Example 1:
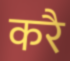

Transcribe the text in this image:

करै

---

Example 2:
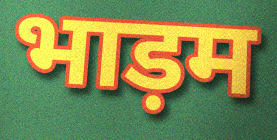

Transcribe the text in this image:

भाड़म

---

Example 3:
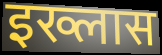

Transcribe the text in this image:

इख्लास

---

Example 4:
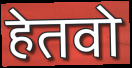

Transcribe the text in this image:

हेतवो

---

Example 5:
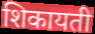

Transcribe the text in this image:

शिकायती